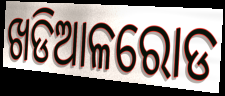
ଖଡିଆଳରୋଡ